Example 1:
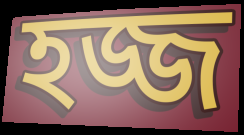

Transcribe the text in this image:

হজ্জ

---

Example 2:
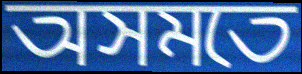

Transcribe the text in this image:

অসমতে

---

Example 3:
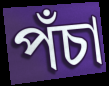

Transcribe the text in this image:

পঁচা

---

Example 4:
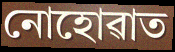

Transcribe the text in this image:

নোহোৱাত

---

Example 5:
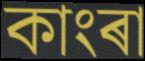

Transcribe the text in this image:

কাংৰা